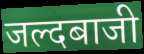
जल्दबाजी